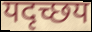
यदृच्छय